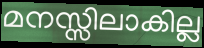
മനസ്സിലാകില്ല